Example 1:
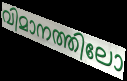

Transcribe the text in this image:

വിമാനത്തിലോ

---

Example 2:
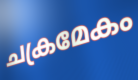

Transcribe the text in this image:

ചക്രമേകം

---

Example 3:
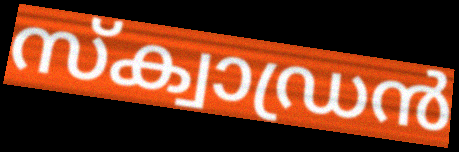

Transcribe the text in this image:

സ്ക്വാഡ്രൻ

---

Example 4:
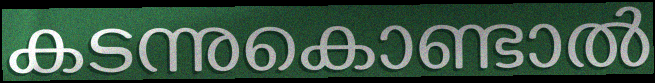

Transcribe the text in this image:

കടന്നുകൊണ്ടാൽ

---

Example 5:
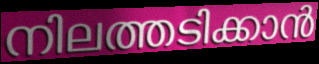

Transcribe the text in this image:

നിലത്തടിക്കാൻ